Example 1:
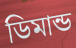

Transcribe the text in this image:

ডিমান্ড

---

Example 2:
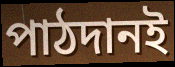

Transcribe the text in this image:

পাঠদানই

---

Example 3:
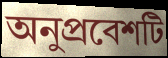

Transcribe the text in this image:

অনুপ্রবেশটি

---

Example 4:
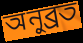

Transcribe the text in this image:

অনুব্রত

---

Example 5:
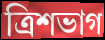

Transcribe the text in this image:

ত্রিশভাগ